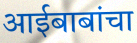
आईबाबांचा